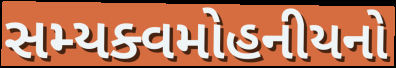
સમ્યક્વમોહનીયનો